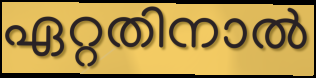
ഏറ്റതിനാൽ